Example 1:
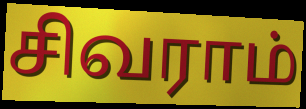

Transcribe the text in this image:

சிவராம்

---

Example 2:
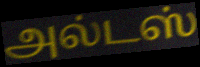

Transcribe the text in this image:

அல்டஸ்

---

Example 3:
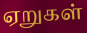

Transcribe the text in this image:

ஏறுகள்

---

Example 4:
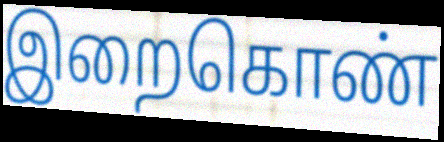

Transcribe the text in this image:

இறைகொண்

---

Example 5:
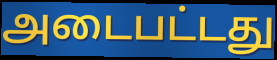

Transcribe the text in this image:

அடைபட்டது